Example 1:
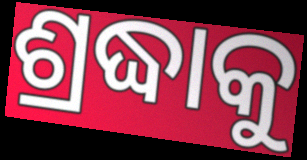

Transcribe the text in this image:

ଶ୍ରଦ୍ଧାକୁ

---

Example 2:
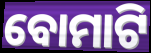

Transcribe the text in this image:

ବୋମାଟି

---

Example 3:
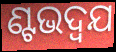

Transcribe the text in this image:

ଣ୍ଟଭଦ୍ଵଯ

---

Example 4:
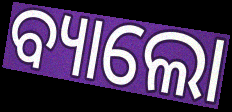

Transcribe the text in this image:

ବ୍ୟାଲୋ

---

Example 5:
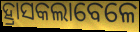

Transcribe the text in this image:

ହ୍ରାସକଲାବେଳେ